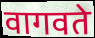
वागवते